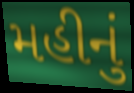
મહીનું